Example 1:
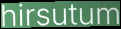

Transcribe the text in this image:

hirsutum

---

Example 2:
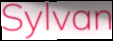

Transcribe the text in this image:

Sylvan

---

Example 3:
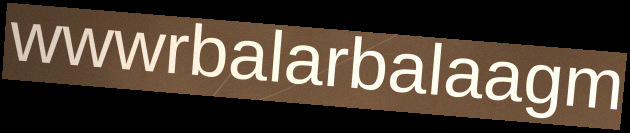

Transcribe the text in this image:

wwwrbalarbalaagm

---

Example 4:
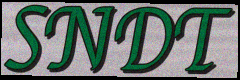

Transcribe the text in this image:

SNDT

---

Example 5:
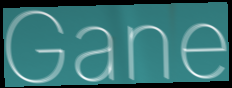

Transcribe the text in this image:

Gane